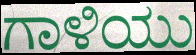
ಗಾಳಿಯು